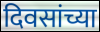
दिवसांच्या